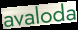
avaloda